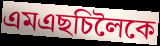
এমএছচিলৈকে